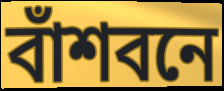
বাঁশবনে